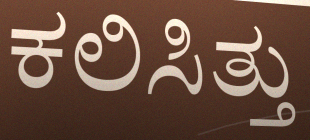
ಕಲಿಸಿತ್ತು